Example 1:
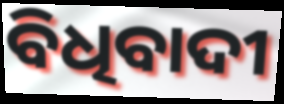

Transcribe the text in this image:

ବିଧିବାଦୀ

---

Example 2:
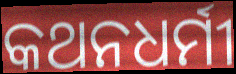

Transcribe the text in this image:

କଥନଧର୍ମୀ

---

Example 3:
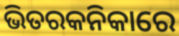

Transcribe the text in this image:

ଭିତରକନିକାରେ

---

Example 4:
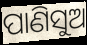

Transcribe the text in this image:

ପାଣିସୁଅ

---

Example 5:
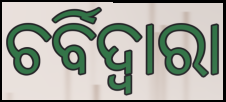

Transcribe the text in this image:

ଚର୍ବିଦ୍ଵାରା